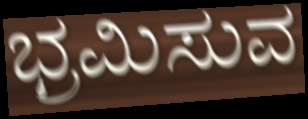
ಭ್ರಮಿಸುವ